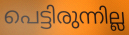
പെട്ടിരുന്നില്ല